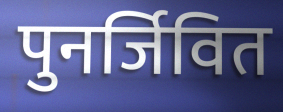
पुनर्जिवित